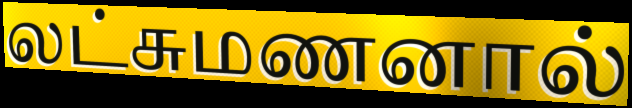
லட்சுமணனால்